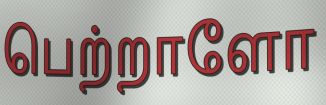
பெற்றாளோ